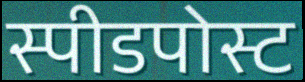
स्पीडपोस्ट